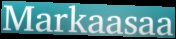
Markaasaa